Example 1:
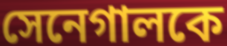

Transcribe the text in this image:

সেনেগালকে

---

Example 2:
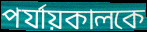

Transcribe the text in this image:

পর্যায়কালকে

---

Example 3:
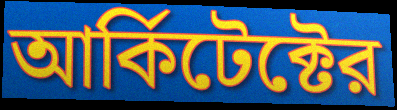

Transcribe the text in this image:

আর্কিটেক্টের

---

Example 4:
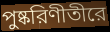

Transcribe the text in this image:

পুষ্করিণীতীরে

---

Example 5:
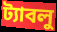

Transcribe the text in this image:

ট্যাবলু